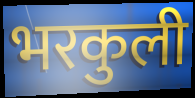
भरकुली